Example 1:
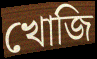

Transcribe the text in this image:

খোজি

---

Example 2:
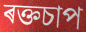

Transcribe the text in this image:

ৰক্তচাপ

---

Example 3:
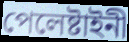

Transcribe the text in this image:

পেলেষ্টাইনী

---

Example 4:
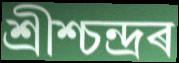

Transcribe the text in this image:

শ্ৰীশ্চন্দ্ৰৰ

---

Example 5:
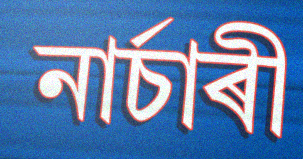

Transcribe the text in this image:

নাৰ্চাৰী